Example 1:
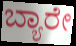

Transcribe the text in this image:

ಬ್ಯಾರೇ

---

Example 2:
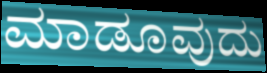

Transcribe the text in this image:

ಮಾಡೂವುದು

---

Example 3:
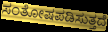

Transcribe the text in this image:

ಸಂತೋಷಪಡಿಸುತ್ತದೆ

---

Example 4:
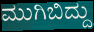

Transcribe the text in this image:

ಮುಗಿಬಿದ್ದು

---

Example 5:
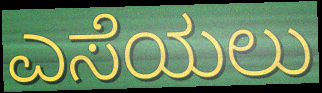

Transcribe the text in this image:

ಎಸೆಯಲು